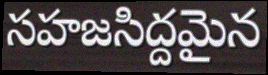
సహజసిద్దమైన